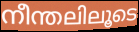
നീന്തലിലൂടെ